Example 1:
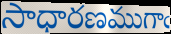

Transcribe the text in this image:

సాధారణముగాఁ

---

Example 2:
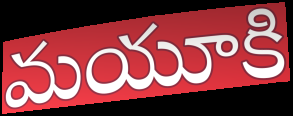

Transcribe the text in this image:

మయూకి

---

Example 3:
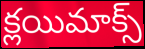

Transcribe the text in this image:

క్లయిమాక్స్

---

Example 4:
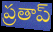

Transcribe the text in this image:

ప్రతాప్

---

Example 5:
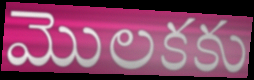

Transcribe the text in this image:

మొలకకు